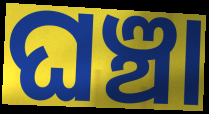
ଘଞ୍ଚା